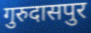
गुरुदासपुर